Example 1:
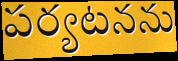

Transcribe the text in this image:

పర్యటనను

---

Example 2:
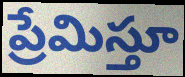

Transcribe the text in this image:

ప్రేమిస్తూ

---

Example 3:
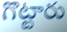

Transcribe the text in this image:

గొట్టారు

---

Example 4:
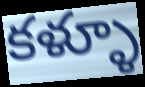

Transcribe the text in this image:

కళ్ళూ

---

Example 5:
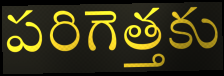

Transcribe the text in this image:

పరిగెత్తకు